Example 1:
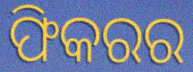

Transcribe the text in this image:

ଫିକରର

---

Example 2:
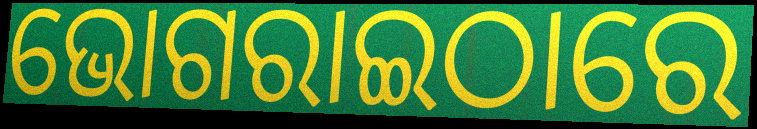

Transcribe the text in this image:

ଭୋଗରାଇଠାରେ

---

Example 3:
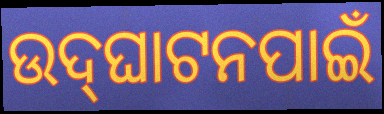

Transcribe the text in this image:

ଉଦ୍‌ଘାଟନପାଇଁ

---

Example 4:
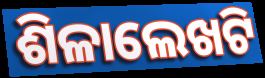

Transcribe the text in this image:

ଶିଳାଲେଖଟି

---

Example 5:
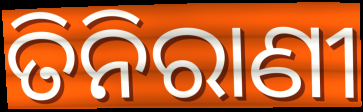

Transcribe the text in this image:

ତିନିରାଣୀ